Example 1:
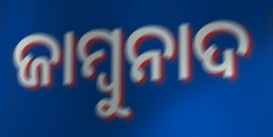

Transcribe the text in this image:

ଜାମ୍ବୁନାଦ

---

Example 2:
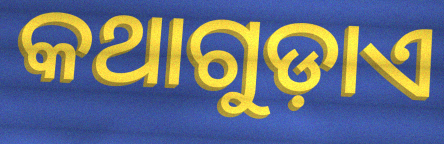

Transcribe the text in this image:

କଥାଗୁଡ଼ାଏ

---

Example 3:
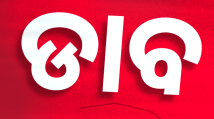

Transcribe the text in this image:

ଡାବ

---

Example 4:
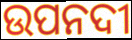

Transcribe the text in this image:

ଉପନଦୀ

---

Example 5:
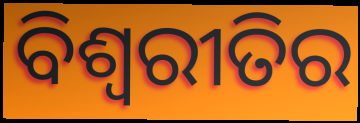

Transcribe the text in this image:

ବିଶ୍ଵରୀତିର